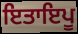
ਇਤਾਇਪੂ